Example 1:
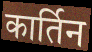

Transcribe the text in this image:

कार्तिन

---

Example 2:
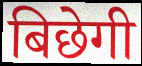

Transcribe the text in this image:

बिछेगी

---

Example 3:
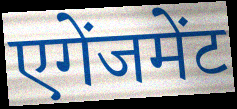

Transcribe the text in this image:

एगेंजमेंट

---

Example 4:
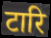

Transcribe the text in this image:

टारि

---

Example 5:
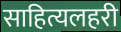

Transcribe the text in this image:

साहित्यलहरी